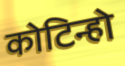
कोटिन्हो